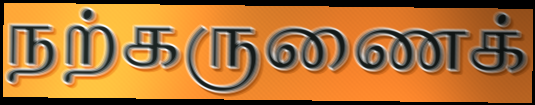
நற்கருணைக்